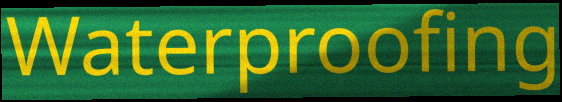
Waterproofing